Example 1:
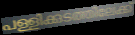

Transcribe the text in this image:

പള്ളിക്കുടത്തിലേക്ക്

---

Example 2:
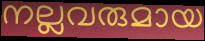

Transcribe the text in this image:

നല്ലവരുമായ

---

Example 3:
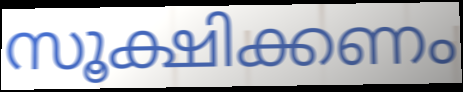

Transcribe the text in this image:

സൂക്ഷിക്കണം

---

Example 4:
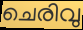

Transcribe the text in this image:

ചെരിവു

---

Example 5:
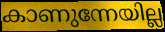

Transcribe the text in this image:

കാണുന്നേയില്ല